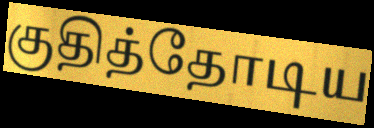
குதித்தோடிய